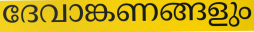
ദേവാങ്കണങ്ങളും